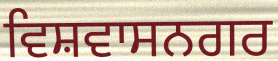
ਵਿਸ਼ਵਾਸਨਗਰ